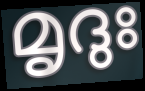
മൃദുഃ